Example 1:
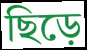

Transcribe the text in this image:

ছিড়ে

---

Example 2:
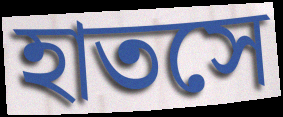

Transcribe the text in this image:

হাতসে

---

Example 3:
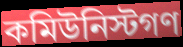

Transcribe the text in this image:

কমিউনিস্টগণ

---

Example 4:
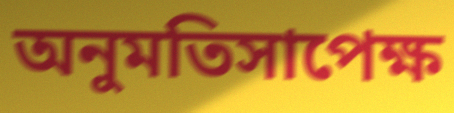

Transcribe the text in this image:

অনুমতিসাপেক্ষ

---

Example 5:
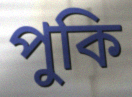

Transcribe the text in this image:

পুকি